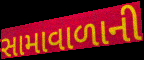
સામાવાળાની